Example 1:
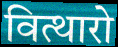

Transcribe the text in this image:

वित्थारो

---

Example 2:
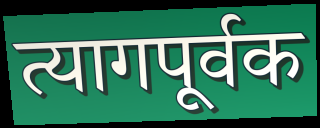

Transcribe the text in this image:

त्यागपूर्वक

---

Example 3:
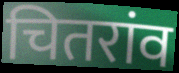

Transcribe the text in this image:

चितरांव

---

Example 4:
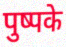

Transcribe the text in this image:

पुष्पके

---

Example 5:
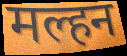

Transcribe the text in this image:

मल्हन